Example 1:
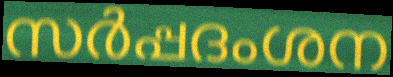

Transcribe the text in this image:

സർപ്പദംശന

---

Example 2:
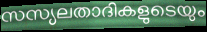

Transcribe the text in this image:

സസ്യലതാദികളുടെയും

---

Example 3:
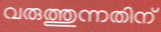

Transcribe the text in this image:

വരുത്തുന്നതിന്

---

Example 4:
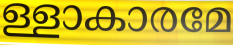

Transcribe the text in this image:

ള്ളാകാരമേ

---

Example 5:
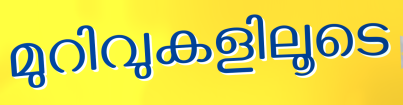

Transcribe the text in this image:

മുറിവുകളിലൂടെ